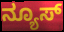
ನ್ಯೂಸ್